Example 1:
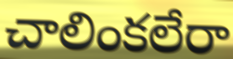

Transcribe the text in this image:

చాలింకలేరా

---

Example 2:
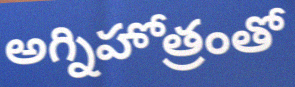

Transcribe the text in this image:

అగ్నిహోత్రంతో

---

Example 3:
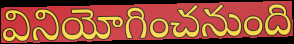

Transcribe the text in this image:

వినియోగించనుంది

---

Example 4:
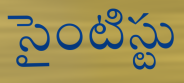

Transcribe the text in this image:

సైంటిస్టు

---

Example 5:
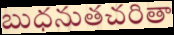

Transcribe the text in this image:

బుధనుతచరితా